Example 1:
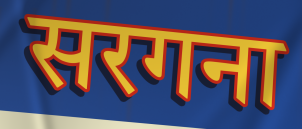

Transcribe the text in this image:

सरगना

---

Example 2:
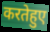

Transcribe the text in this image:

करतेहुए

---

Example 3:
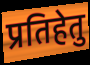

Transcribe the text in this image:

प्रतिहेतु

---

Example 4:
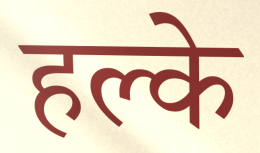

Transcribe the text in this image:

हल्के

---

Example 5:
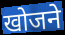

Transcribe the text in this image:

खोजने